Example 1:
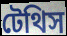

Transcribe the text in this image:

টেথিস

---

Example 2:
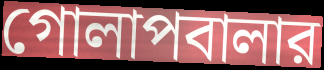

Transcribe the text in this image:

গোলাপবালার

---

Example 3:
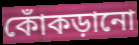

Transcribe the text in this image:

কোঁকড়ানো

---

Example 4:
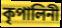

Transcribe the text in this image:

কৃপালিনী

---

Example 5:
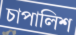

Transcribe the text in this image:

চাপালিশ